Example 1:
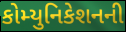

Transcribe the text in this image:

કોમ્યુનિકેશનની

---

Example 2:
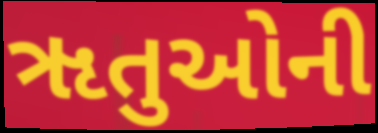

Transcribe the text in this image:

ૠતુઓની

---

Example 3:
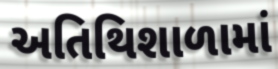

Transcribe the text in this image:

અતિથિશાળામાં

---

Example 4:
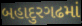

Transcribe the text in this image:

બહાદુરગઢમાં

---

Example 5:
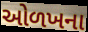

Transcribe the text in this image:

ઓળખના